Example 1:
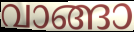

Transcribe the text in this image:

വാങ്ങാ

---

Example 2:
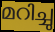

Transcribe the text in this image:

മറിച്ചു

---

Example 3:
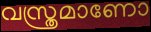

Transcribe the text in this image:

വസ്ത്രമാണോ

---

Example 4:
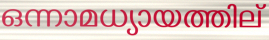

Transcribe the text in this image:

ഒന്നാമധ്യായത്തില്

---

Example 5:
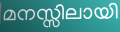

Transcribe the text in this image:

മനസ്സിലായി